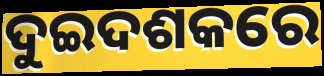
ଦୁଇଦଶକରେ